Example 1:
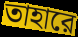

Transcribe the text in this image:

তাহারে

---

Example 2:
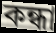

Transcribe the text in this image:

কন্ধা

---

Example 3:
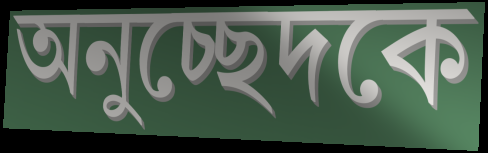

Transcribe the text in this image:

অনুচ্ছেদকে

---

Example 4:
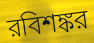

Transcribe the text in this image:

রবিশঙ্কর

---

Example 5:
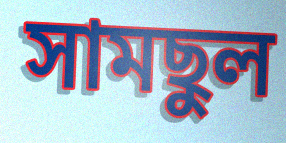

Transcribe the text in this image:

সামছুল